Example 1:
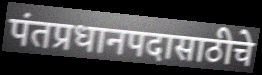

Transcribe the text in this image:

पंतप्रधानपदासाठीचे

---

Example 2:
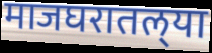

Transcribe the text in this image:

माजघरातल्या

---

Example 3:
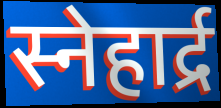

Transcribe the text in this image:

स्नेहार्द्र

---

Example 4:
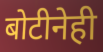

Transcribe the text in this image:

बोटीनेही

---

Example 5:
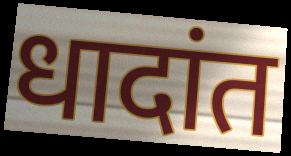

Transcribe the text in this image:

धादांत